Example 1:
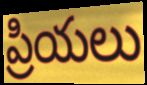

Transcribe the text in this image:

ప్రియలు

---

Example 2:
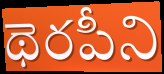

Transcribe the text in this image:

థెరపీని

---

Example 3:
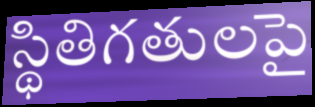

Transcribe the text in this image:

స్థితిగతులపై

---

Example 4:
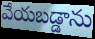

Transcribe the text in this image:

వేయబడ్డాను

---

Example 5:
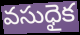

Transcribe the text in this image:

వసుధైక